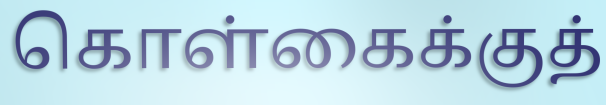
கொள்கைக்குத்